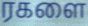
ரகளை